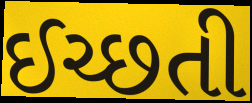
ઈચ્છતી